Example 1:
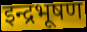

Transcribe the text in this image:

इन्द्रभूषण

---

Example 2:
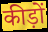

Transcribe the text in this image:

कीड़ों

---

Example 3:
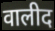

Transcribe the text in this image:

वालीद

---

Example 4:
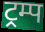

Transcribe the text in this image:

ट्रम्‍प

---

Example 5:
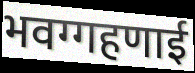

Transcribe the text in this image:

भवग्गहणाई